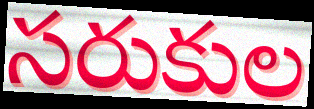
సరుకుల